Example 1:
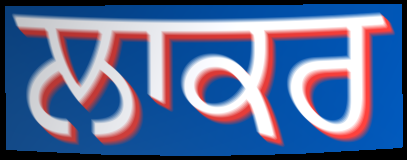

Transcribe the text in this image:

ਲਾਕਰ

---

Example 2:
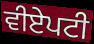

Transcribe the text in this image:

ਵੀਏਪਟੀ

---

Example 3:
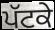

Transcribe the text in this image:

ਪੱਟਕੇ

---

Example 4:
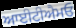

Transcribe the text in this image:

ਆਈਟੀਐਮਓ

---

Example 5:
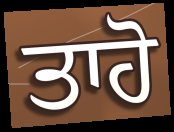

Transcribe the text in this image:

ਤਾਹੋ